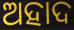
ଅହାଦ